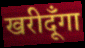
खरीदूँगा